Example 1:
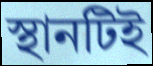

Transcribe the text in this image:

স্থানটিই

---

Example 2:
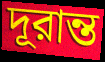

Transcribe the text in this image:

দূরান্ত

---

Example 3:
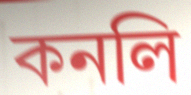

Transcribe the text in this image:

কনলি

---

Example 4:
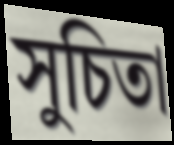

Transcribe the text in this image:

সুচিতা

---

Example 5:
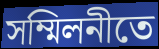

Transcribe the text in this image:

সম্মিলনীতে